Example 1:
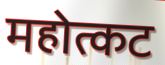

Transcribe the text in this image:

महोत्कट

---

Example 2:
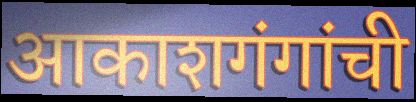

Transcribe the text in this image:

आकाशगंगांची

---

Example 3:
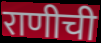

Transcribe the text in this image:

राणीची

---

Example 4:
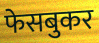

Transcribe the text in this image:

फेसबुकर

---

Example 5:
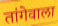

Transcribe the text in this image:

तांगेवाला